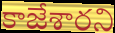
కాజేశారని